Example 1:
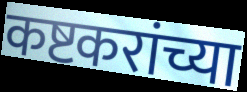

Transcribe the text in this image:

कष्टकरांच्या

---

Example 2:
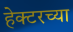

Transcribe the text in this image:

हेक्टरच्या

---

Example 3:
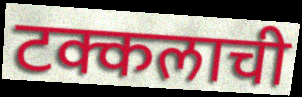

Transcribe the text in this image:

टक्कलाची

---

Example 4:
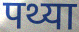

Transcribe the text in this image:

पथ्या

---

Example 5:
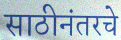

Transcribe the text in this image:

साठीनंतरचे